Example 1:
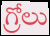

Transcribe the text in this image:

గ్రోలు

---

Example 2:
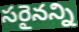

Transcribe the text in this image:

సరైనన్ని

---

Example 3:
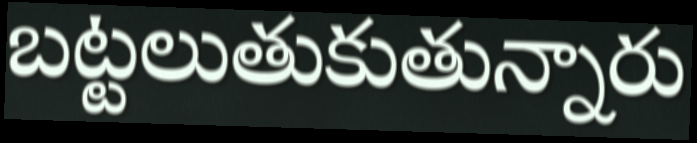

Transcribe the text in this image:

బట్టలుతుకుతున్నారు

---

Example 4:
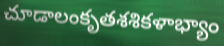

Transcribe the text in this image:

చూడాలంకృతశశికళాభ్యాం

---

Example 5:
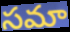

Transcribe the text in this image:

సమా